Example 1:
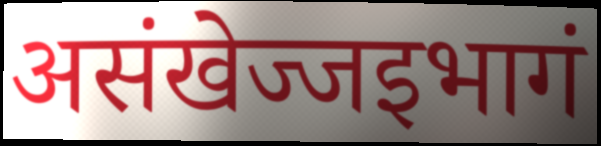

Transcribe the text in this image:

असंखेज्जइभागं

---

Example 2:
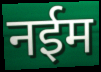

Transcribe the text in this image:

नईम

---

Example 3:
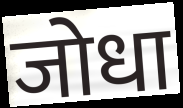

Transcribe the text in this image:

जोधा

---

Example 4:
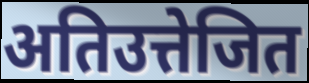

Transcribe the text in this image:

अतिउत्तेजित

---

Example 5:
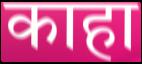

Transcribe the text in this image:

काहा